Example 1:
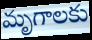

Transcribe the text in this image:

మృగాలకు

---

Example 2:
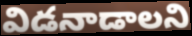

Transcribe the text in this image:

విడనాడాలని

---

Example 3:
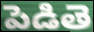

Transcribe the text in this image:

పెడితె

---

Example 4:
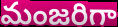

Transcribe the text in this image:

మంజరిగా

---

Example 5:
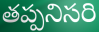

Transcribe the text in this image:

తప్పనిసరి